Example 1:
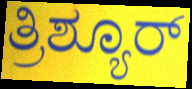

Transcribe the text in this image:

ತ್ರಿಶ್ಯೂರ್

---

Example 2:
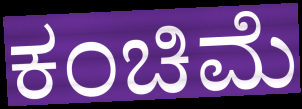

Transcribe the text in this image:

ಕಂಚಿಮೆ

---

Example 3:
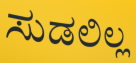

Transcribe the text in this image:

ಸುಡಲಿಲ್ಲ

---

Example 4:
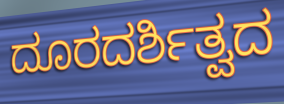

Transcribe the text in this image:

ದೂರದರ್ಶಿತ್ವದ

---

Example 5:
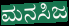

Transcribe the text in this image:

ಮನಸಿಜ